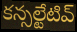
కన్సల్టేటివ్